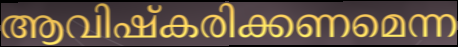
ആവിഷ്കരിക്കണമെന്ന